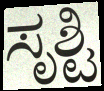
ಸೃಶ್ಟಿ